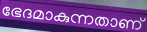
ഭേദമാകുന്നതാണ്